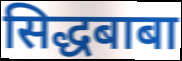
सिद्धबाबा